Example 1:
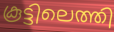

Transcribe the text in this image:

കൂട്ടിലെത്തി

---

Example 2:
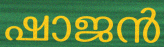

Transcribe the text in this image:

ഷാജൻ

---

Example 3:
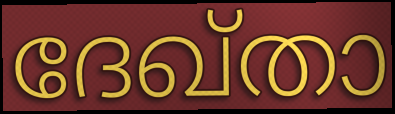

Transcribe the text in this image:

ദേഖ്താ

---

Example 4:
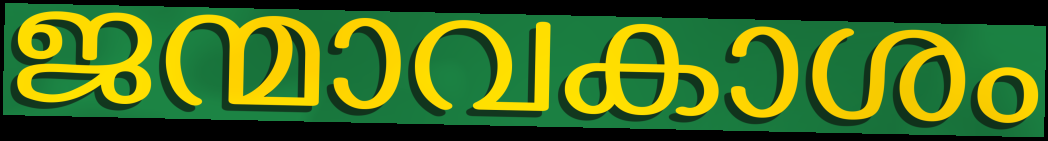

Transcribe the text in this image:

ജന്മാവകാശം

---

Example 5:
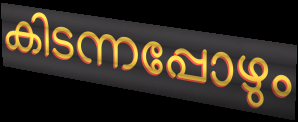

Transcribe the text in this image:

കിടന്നപ്പോഴും